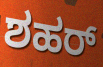
ಶಹರ್